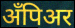
अँपिअर